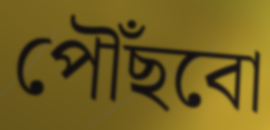
পৌঁছবো